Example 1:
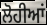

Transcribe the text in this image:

ਲੋਹੀਆਂ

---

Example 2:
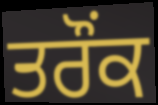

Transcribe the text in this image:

ਤਰੌਂਕ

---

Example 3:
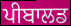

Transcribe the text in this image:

ਪੀਬਾਲਡ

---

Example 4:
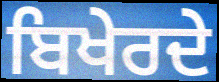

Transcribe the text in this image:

ਬਿਖੇਰਦੇ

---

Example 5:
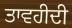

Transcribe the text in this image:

ਤਾਵਹੀਦੀ